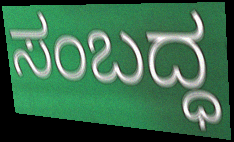
ಸಂಬದ್ಧ